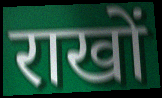
राखों